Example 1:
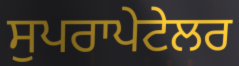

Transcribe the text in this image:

ਸੁਪਰਾਪੇਟੇਲਰ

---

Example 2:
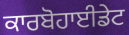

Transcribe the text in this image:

ਕਾਰਬੋਹਾਈਡੇਟ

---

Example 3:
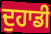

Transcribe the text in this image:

ਦੁਹਾਡੀ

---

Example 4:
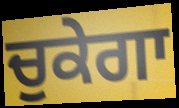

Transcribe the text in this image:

ਚੁਕੇਗਾ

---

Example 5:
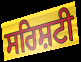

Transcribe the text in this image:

ਸਰਿਸ਼ਟੀ